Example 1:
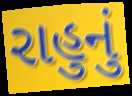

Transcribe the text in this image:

રાહુનું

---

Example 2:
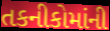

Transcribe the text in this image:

તકનીકોમાંની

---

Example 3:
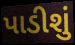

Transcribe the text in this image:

પાડીશું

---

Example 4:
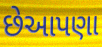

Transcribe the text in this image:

છેઆપણા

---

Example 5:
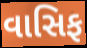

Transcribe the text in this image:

વાસિફ